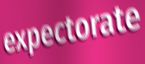
expectorate